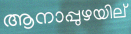
ആനാപ്പുഴയില്